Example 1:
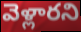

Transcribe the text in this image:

వెళ్లారని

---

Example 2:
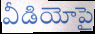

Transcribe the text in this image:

వీడియోపై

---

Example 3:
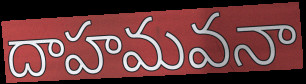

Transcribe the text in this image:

దాహమవనా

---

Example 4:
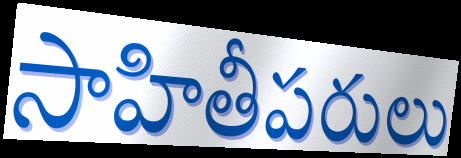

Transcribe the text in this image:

సాహితీపరులు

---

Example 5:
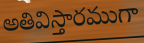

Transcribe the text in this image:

అతివిస్తారముగా